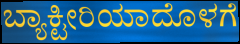
ಬ್ಯಾಕ್ಟೀರಿಯಾದೊಳಗೆ